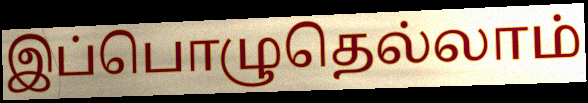
இப்பொழுதெல்லாம்